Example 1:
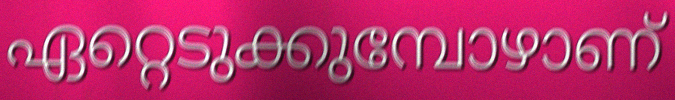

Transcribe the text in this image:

ഏറ്റെടുക്കുമ്പോഴാണ്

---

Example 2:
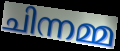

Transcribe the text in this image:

ചിന്നമ്മ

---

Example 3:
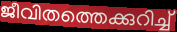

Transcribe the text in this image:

ജീവിതത്തെക്കുറിച്ച്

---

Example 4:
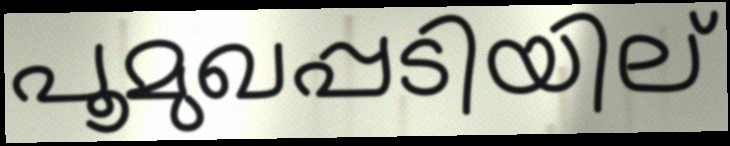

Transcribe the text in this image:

പൂമുഖപ്പടിയില്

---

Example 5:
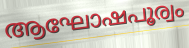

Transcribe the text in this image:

ആഘോഷപൂര്വം